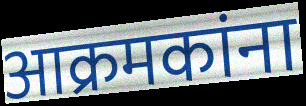
आक्रमकांना